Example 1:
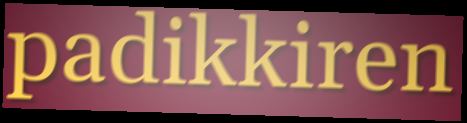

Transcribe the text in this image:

padikkiren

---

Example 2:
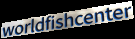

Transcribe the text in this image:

worldfishcenter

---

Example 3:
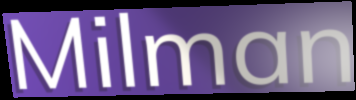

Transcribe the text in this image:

Milman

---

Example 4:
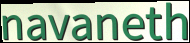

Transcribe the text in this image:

navaneth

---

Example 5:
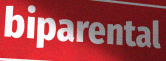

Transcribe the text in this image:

biparental